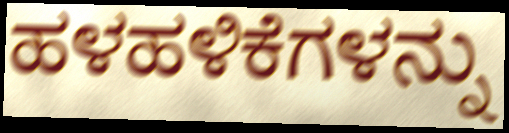
ಹಳಹಳಿಕೆಗಳನ್ನು